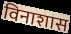
विनाशास